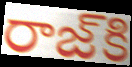
రాజ్‌కి